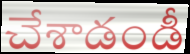
చేశాడండీ